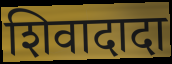
शिवादादा